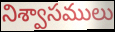
నిశ్వాసములు